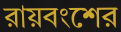
রায়বংশের